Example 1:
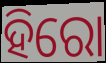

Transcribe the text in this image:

ହିରୋ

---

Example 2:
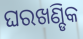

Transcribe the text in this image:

ଘରଖଣ୍ଡିକ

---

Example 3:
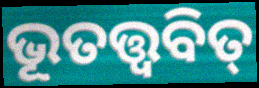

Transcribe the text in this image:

ଭୂତତ୍ତ୍ୱବିତ୍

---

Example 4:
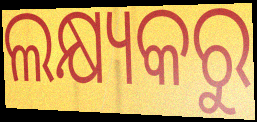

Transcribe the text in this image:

ଲକ୍ଷ୍ୟକରୁ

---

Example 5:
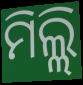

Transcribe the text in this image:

ମିଲ୍ଲି